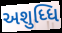
અશુધ્ધિ